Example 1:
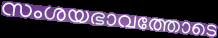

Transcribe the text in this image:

സംശയഭാവത്തോടെ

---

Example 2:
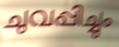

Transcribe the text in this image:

ചുവപ്പിച്ചും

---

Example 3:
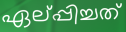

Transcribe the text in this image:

ഏല്പ്പിച്ചത്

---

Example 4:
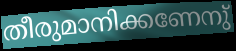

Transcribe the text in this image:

തീരുമാനിക്കണേനു്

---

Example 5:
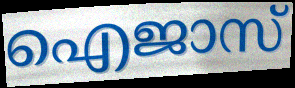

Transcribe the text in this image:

ഐജാസ്